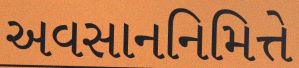
અવસાનનિમિત્તે